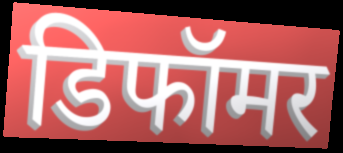
डिफॉमर